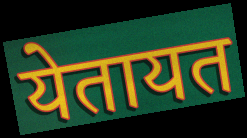
येतायत